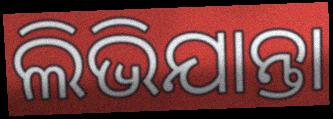
ଲିଭିଯାନ୍ତା